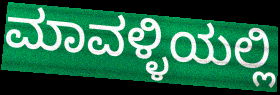
ಮಾವಳ್ಳಿಯಲ್ಲಿ